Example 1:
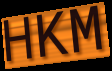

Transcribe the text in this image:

HKM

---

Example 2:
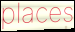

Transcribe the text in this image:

places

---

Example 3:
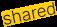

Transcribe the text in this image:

shared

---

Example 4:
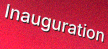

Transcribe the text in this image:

Inauguration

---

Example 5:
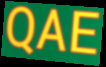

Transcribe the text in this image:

QAE